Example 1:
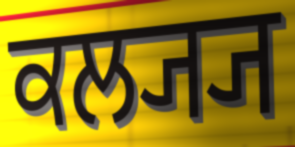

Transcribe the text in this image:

ਕਲ੍ਯ੍ਯ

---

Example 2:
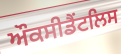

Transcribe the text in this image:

ਔਕਸੀਡੈਂਟਲਿਸ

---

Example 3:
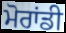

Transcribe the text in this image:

ਮੋਰਾਂਡੀ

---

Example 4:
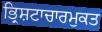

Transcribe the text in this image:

ਭ੍ਰਿਸ਼ਟਾਚਾਰਮੁਕਤ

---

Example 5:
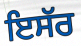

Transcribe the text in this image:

ਇਸੱਰ